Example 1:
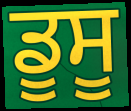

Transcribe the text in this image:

ਡੂਸੂ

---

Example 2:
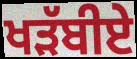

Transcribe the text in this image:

ਖੜੱਬੀਏ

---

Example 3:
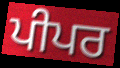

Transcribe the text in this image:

ਪੀਪਰ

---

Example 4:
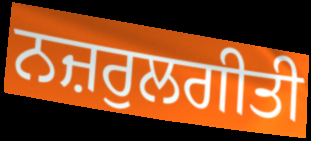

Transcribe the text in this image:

ਨਜ਼ਰੁਲਗੀਤੀ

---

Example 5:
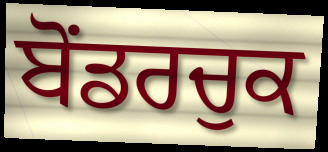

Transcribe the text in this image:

ਬੋਂਡਰਚੁਕ